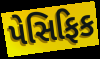
પેસિફિક